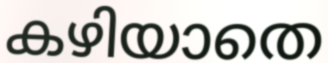
കഴിയാതെ